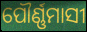
ପୌର୍ଣ୍ଣମାସୀ